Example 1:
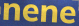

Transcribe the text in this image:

nene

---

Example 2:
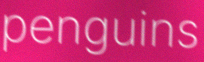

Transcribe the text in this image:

penguins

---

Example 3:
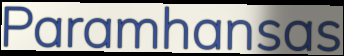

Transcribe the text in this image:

Paramhansas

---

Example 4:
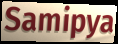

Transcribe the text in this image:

Samipya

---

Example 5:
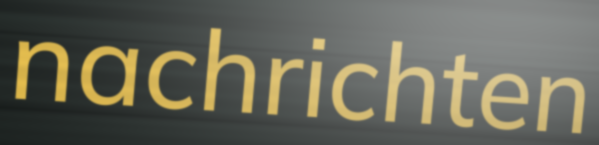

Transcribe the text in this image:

nachrichten